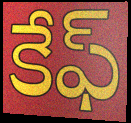
కేఫ్